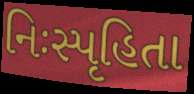
નિઃસ્પૃહિતા